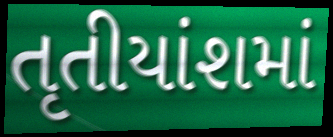
તૃતીયાંશમાં